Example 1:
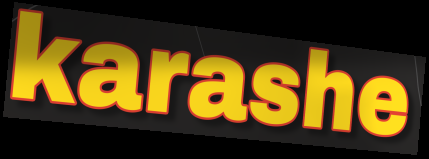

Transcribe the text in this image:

karashe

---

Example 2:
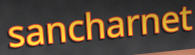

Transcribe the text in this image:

sancharnet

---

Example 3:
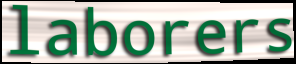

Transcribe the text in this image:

laborers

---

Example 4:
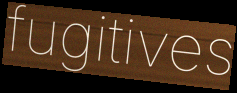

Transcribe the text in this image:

fugitives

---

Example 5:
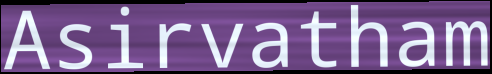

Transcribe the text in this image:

Asirvatham